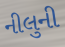
નીલુની